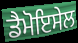
ਡੈਮੋਇਸੇਲ